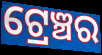
ଟ୍ରେଞ୍ଚର